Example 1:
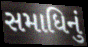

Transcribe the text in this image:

સમાધિનું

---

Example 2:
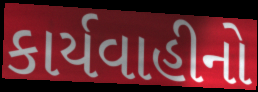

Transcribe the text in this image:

કાર્યવાહીનો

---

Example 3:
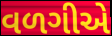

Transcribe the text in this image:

વળગીએ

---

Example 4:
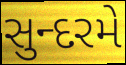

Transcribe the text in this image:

સુન્દરમે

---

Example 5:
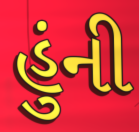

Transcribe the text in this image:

હુંની